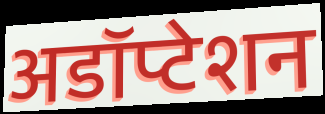
अडॉप्टेशन